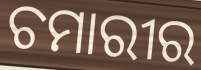
ଚମାରୀର